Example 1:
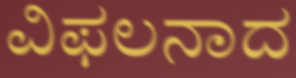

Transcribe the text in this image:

ವಿಫಲನಾದ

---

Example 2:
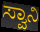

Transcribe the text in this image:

ಸ್ವಾನಿ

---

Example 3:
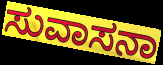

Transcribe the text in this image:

ಸುವಾಸನಾ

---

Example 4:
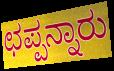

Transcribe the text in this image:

ಛಪ್ಪನ್ನಾರು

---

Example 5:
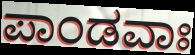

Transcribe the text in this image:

ಪಾಂಡವಾಃ